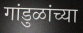
गांडुळांच्या